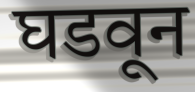
घडवून